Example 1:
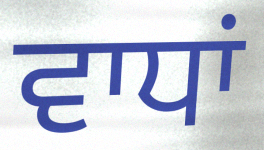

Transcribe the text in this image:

ਵਾਧਾਂ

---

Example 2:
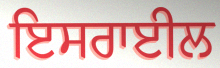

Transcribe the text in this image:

ਇਸਰਾਈਲ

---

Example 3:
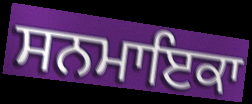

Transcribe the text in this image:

ਸਨਮਾਇਕਾ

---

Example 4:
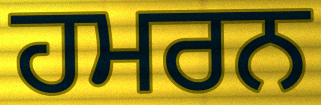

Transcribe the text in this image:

ਹਮਰਨ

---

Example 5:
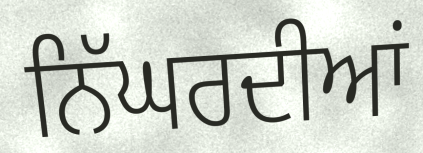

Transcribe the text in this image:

ਨਿੱਘਰਦੀਆਂ